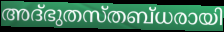
അദ്ഭുതസ്തബ്ധരായി